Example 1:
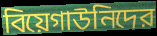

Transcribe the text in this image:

বিয়েগাউনিদের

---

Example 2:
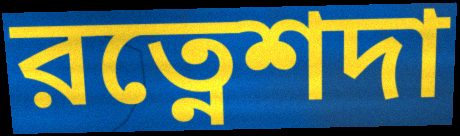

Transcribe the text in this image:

রত্নেশদা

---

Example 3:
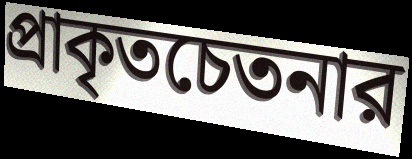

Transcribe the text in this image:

প্রাকৃতচেতনার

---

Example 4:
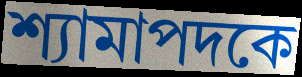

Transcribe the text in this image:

শ্যামাপদকে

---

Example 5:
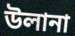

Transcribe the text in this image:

উলানা